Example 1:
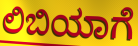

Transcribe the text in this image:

ಲಿಬಿಯಾಗೆ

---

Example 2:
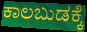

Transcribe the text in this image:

ಕಾಲಬುಡಕ್ಕೆ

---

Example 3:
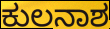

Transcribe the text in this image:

ಕುಲನಾಶ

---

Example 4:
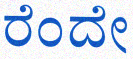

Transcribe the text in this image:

ರೆಂದೇ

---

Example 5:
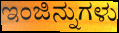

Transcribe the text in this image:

ಇಂಜಿನ್ನುಗಳು